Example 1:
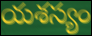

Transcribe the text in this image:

యశస్యం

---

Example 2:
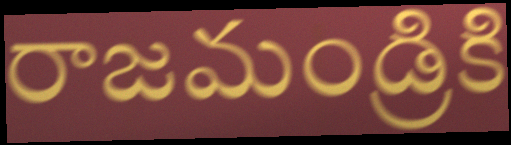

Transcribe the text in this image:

రాజమండ్రికి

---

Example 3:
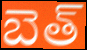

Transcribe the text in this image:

బెత్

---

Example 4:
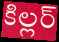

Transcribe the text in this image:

కిల్లర్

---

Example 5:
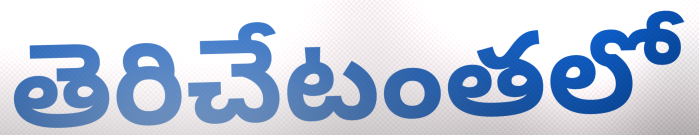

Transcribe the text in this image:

తెరిచేటంతలో